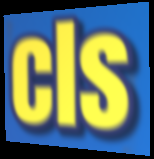
cls